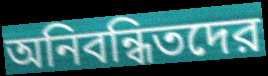
অনিবন্ধিতদের